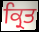
ਕ੍ਰਿਤ